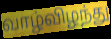
வாழ்விழந்து